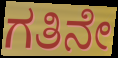
ಗತಿನೇ